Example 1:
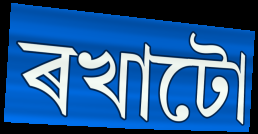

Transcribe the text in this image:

ৰখাটো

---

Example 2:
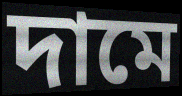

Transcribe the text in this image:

দামে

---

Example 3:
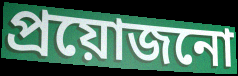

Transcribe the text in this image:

প্ৰয়োজনো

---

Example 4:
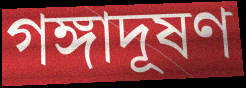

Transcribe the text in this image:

গঙ্গাদূষণ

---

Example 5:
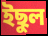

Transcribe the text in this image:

ইছুল